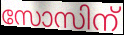
സോസിന്